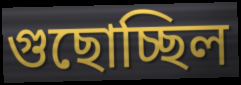
গুছোচ্ছিল